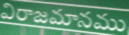
విరాజమానము